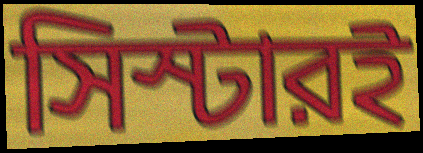
সিস্টারই